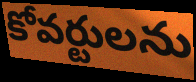
కోవర్టులను